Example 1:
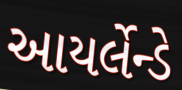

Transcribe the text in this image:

આયર્લેન્ડે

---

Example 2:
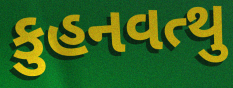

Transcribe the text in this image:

કુહનવત્થુ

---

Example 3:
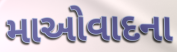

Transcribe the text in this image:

માઓવાદના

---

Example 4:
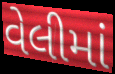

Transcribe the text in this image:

વેલીમાં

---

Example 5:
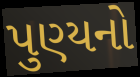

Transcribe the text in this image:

પુણ્યનો